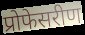
प्रोफेसरीण